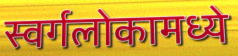
स्वर्गलोकामध्ये